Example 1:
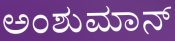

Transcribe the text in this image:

ಅಂಶುಮಾನ್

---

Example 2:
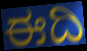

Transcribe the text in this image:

ಈದಿ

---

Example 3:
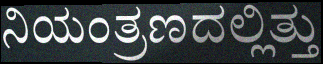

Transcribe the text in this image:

ನಿಯಂತ್ರಣದಲ್ಲಿತ್ತು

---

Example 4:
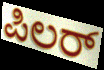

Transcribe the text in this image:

ಪಿಲರ್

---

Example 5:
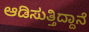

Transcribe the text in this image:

ಆಡಿಸುತ್ತಿದ್ದಾನೆ